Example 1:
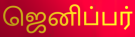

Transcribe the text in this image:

ஜெனிப்பர்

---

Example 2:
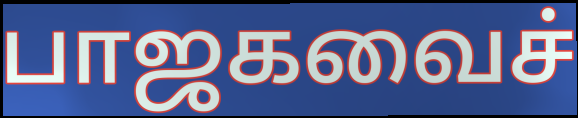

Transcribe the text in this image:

பாஜகவைச்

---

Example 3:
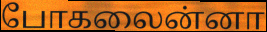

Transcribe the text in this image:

போகலைன்னா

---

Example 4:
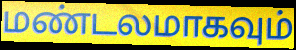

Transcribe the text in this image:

மண்டலமாகவும்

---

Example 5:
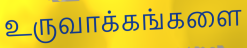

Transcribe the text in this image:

உருவாக்கங்களை